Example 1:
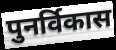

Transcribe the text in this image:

पुनर्विकास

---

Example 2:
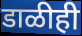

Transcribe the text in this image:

डाळीही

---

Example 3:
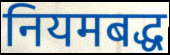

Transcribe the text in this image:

नियमबद्ध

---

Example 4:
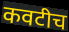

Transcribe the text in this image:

कवटीच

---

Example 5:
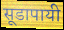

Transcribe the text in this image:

सूडापायी